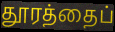
தூரத்தைப்